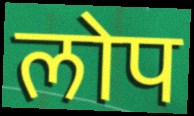
लोप